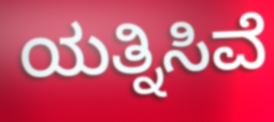
ಯತ್ನಿಸಿವೆ